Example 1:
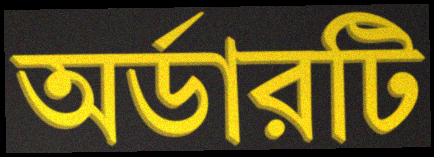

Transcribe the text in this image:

অর্ডারটি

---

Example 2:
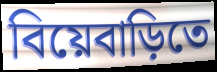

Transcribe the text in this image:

বিয়েবাড়িতে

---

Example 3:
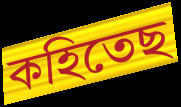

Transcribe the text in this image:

কহিতেছ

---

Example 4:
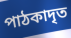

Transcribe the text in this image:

পাঠকাদৃত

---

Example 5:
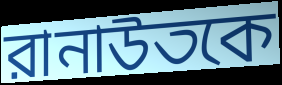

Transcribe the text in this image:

রানাউতকে